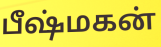
பீஷ்மகன்